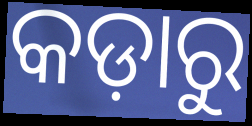
କଡ଼ାରୁ